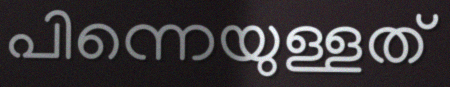
പിന്നെയുള്ളത്